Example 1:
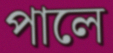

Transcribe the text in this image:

পালে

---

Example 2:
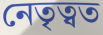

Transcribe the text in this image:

নেতৃত্বত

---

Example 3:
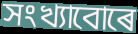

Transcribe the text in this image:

সংখ্যাবোৰে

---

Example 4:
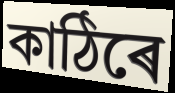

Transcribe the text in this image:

কাঠিৰে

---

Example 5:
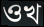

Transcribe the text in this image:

ওখ